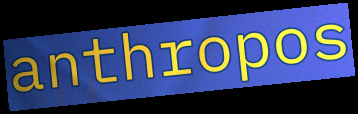
anthropos